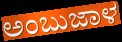
ಅಂಬುಜಾಳ